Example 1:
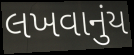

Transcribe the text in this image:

લખવાનુંય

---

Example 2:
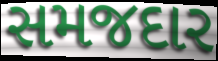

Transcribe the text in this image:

સમજદાર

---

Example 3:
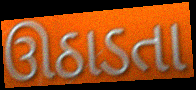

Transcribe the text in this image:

ઊઠાડતા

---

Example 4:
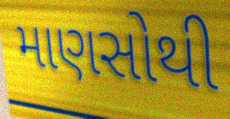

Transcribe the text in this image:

માણસોથી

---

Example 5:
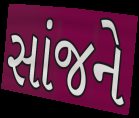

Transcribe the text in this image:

સાંજને